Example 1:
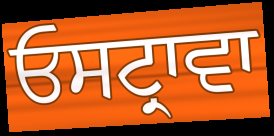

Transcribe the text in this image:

ਓਸਟ੍ਰਾਵਾ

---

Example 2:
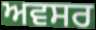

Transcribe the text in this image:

ਅਵਸਰ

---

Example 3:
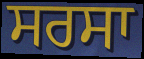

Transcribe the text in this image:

ਸਰਸਾ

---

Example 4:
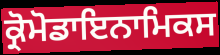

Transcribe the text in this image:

ਕ੍ਰੋਮੋਡਾਇਨਾਮਿਕਸ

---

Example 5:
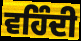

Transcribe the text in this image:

ਵਹਿੰਦੀ